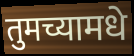
तुमच्यामधे